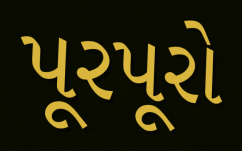
પૂરપૂરો